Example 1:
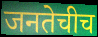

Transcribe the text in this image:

जनतेचीच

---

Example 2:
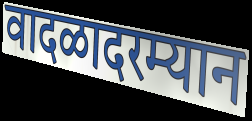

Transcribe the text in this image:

वादळादरम्यान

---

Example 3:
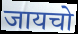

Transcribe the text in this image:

जायचो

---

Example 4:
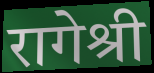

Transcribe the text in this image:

रागेश्री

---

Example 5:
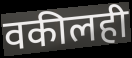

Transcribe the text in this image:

वकीलही